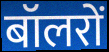
बॉलरों